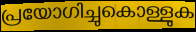
പ്രയോഗിച്ചുകൊള്ളുക